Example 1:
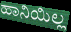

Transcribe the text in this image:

ಹಾನಿಯಿಲ್ಲ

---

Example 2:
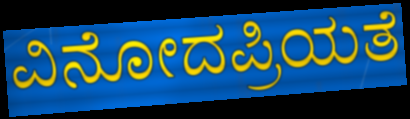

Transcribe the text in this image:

ವಿನೋದಪ್ರಿಯತೆ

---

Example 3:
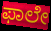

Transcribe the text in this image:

ಫಾಲೇ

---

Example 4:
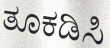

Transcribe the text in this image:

ತೂಕಡಿಸಿ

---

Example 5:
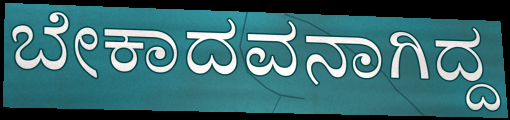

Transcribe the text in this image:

ಬೇಕಾದವನಾಗಿದ್ದ